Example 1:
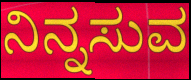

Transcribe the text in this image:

ನಿನ್ನಸುವ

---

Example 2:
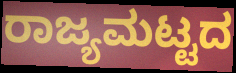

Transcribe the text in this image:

ರಾಜ್ಯಮಟ್ಟದ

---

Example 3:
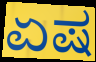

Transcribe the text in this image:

ಏಷ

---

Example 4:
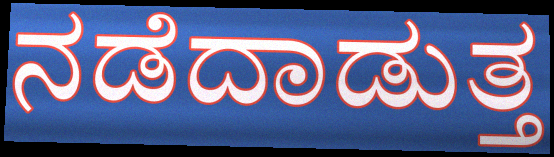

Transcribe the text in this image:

ನಡೆದಾಡುತ್ತ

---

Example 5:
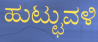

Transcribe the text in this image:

ಹುಟ್ಟುವಳಿ